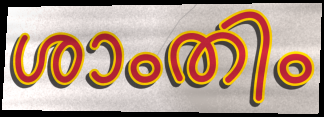
ശാംതിം